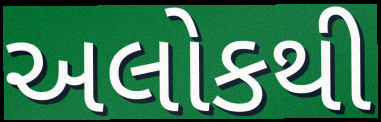
અલોકથી